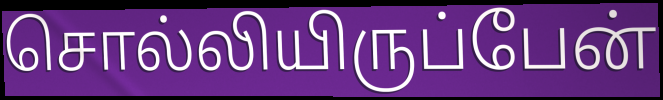
சொல்லியிருப்பேன்